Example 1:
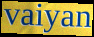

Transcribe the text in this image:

vaiyan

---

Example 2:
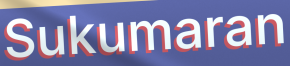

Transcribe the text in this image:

Sukumaran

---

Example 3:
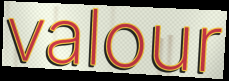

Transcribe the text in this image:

valour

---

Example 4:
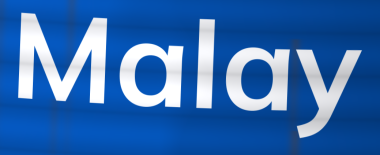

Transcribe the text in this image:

Malay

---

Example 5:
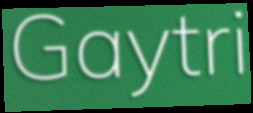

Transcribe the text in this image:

Gaytri